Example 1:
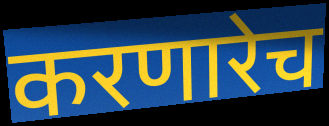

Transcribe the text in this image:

करणारेच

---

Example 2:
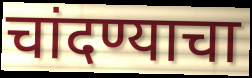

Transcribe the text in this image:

चांदण्याचा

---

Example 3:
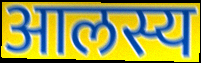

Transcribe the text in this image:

आलस्य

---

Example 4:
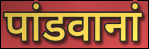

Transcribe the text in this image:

पांडवानां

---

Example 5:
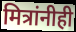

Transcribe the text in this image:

मित्रांनीही